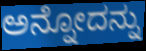
ಅನ್ನೋದನ್ನು